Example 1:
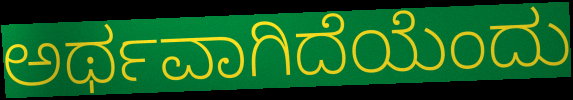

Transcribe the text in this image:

ಅರ್ಥವಾಗಿದೆಯೆಂದು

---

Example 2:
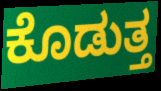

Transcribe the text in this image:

ಕೊಡುತ್ತ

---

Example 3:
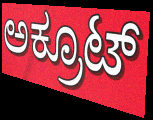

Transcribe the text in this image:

ಅಕ್ರೂಟ್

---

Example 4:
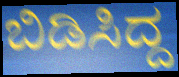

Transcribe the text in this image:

ಬಿಡಿಸಿದ್ದ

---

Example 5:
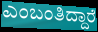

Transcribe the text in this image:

ಎಂಬಂತಿದ್ದಾರೆ